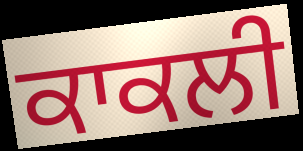
ਕਾਕਲੀ